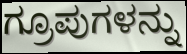
ಗ್ರೂಪುಗಳನ್ನು